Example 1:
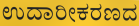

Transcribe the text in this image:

ಉದಾರೀಕರಣದ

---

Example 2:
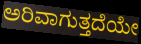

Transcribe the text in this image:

ಅರಿವಾಗುತ್ತದೆಯೇ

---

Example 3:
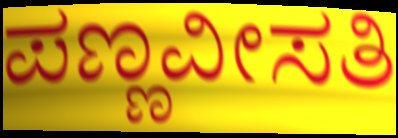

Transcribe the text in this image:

ಪಣ್ಣವೀಸತಿ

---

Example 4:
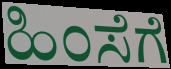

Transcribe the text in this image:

ಹಿಂಸೆಗೆ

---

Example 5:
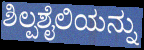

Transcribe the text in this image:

ಶಿಲ್ಪಶೈಲಿಯನ್ನು